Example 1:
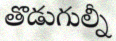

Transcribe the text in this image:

తొడుగుల్నీ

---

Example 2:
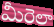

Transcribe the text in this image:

మీరెలా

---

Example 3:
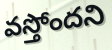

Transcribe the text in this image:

వస్తోందని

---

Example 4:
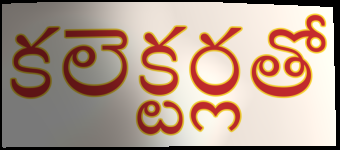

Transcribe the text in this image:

కలెక్టర్లతో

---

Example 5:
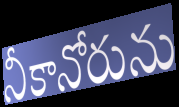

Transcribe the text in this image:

నీకానోరును